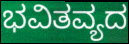
ಭವಿತವ್ಯದ